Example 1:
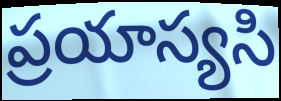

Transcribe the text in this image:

ప్రయాస్యసి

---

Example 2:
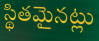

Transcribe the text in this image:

స్థితమైనట్లు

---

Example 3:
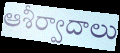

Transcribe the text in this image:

ఆశీర్వాదాలు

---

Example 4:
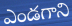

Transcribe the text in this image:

ఎండగాని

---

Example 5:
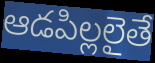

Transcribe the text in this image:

ఆడపిల్లలైతే